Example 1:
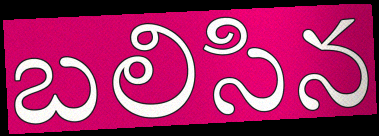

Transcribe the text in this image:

బలిసిన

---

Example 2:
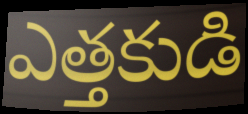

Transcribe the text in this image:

ఎత్తకుడి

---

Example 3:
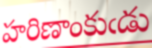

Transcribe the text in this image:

హరిణాంకుఁడు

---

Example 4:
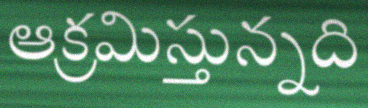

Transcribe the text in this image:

ఆక్రమిస్తున్నది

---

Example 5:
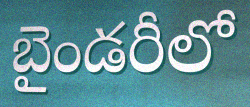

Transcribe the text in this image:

బైండరీలో